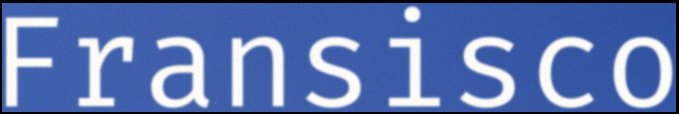
Fransisco